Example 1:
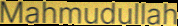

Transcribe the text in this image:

Mahmudullah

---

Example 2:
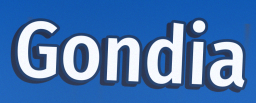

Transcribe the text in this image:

Gondia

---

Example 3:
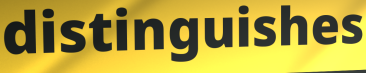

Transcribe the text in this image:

distinguishes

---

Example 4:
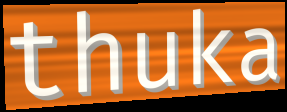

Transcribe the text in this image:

thuka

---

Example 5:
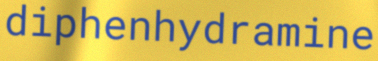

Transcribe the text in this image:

diphenhydramine